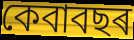
কেবাবছৰ